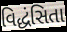
વિદ્ધંસિતા